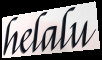
helalu